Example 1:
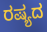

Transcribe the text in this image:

ರಷ್ಯದ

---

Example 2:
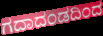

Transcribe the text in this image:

ಗದಾದಂಡದಿಂದ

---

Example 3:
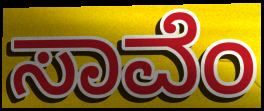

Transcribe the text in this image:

ಸಾವೆಂ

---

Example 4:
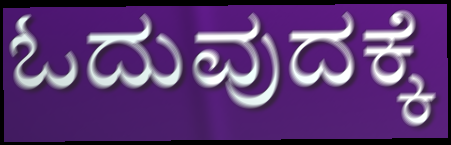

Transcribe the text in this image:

ಓದುವುದಕ್ಕೆ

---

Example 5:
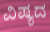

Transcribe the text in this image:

ವಿಷ್ಯದ